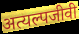
अत्यल्पजीवी